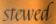
stewed